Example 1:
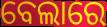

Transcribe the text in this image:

ବେଲାରେ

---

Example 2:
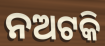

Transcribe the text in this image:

ନଅଟକି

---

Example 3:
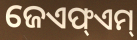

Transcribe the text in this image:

ଜେଏଫ୍ଏମ୍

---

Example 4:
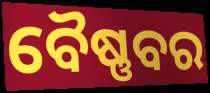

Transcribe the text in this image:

ବୈଷ୍ଣବର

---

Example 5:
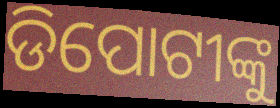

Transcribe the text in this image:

ଡିପୋଟୀଙ୍କୁ